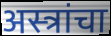
अस्त्रांचा